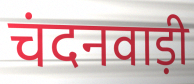
चंदनवाड़ी